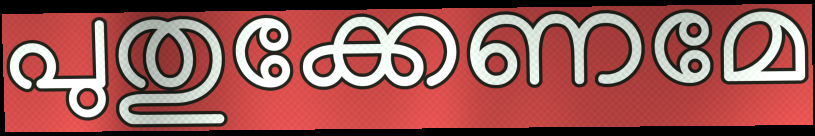
പുതുക്കേണമേ